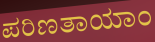
ಪರಿಣತಾಯಾಂ